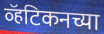
व्हॅटिकनच्या